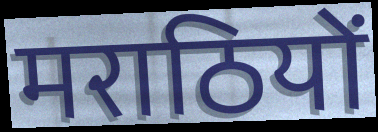
मराठियों